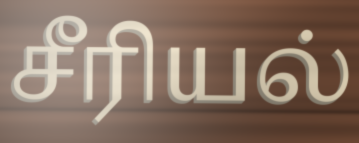
சீரியல்